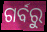
ଗର୍ବରୁ